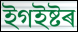
ইগইষ্টৰ